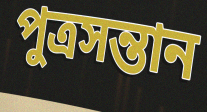
পুত্রসন্তান